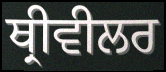
ਥ੍ਰੀਵੀਲਰ